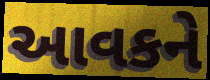
આવકને